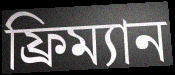
ফ্রিম্যান